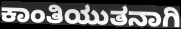
ಕಾಂತಿಯುತನಾಗಿ